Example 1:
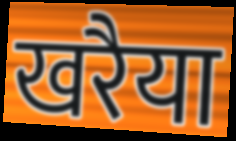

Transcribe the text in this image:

खरैया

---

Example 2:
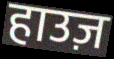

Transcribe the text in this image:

हाउज़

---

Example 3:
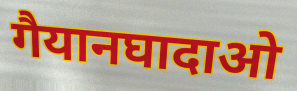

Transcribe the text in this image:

गैयानघादाओ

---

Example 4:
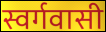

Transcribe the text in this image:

स्‍वर्गवासी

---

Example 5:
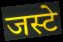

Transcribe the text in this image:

जस्टे